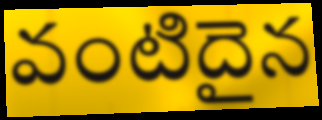
వంటిదైన